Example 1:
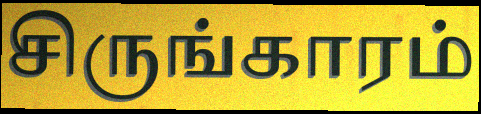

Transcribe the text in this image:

சிருங்காரம்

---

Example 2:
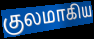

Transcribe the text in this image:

குலமாகிய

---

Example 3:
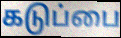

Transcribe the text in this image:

கடுப்பை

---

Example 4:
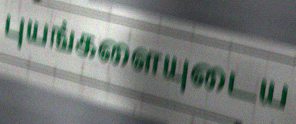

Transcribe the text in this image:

புயங்களையுடைய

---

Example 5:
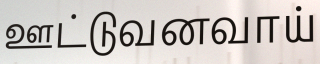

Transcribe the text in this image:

ஊட்டுவனவாய்